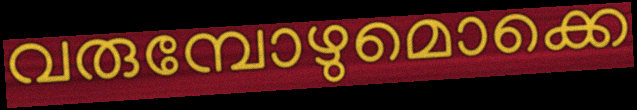
വരുമ്പോഴുമൊക്കെ